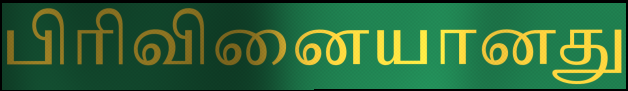
பிரிவினையானது